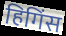
हिगिंस